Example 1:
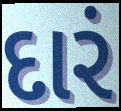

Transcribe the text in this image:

દારં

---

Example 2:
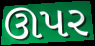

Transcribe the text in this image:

ઊપર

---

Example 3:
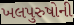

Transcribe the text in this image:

ખલપુરુષોની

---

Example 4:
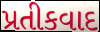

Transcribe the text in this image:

પ્રતીકવાદ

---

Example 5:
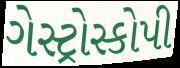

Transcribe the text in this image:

ગેસ્ટ્રોસ્કોપી